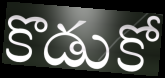
కొడుకో